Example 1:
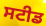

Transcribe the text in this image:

ਸਟੀਡ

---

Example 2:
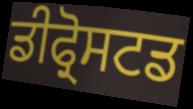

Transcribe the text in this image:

ਡੀਫ੍ਰੋਸਟਡ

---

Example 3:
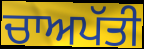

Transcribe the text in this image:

ਚਾਅਪੱਤੀ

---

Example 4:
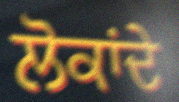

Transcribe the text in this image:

ਲੋਕਾਂਦੇ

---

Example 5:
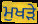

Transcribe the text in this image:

ਮੁਖੜੇ